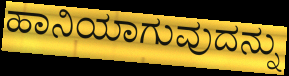
ಹಾನಿಯಾಗುವುದನ್ನು